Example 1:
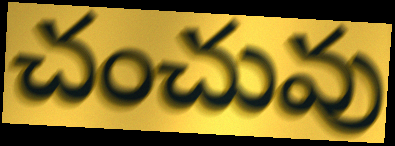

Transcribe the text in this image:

చంచువు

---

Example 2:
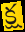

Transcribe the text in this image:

క్ష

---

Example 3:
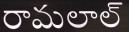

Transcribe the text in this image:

రామలాల్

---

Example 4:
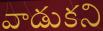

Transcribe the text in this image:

వాడుకని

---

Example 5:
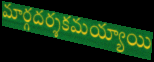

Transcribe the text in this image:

మార్గదర్శకమయ్యాయి